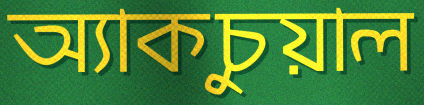
অ্যাকচুয়াল